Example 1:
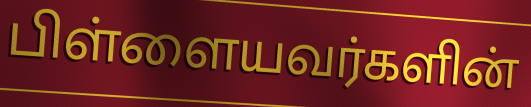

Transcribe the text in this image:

பிள்ளையவர்களின்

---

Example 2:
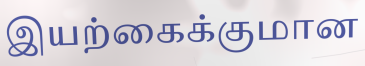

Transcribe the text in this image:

இயற்கைக்குமான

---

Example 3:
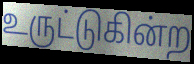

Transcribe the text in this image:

உருட்டுகின்ற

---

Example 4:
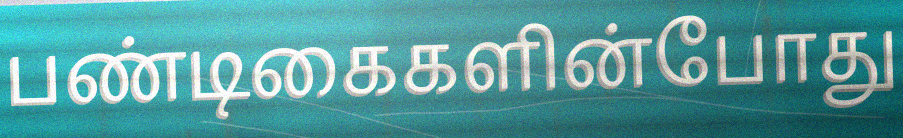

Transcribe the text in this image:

பண்டிகைகளின்போது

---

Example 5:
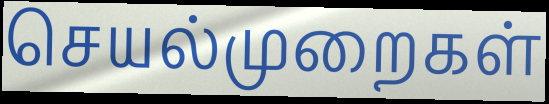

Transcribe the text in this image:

செயல்முறைகள்